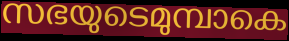
സഭയുടെമുമ്പാകെ